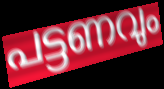
പട്ടണവും